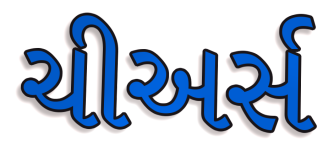
ચીઅર્સ